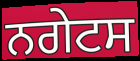
ਨਗੇਟਸ